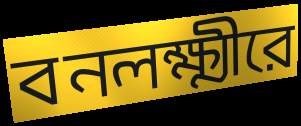
বনলক্ষ্মীরে